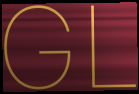
GL